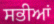
ਸਭੀਆਂ